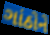
ગાંઠોને